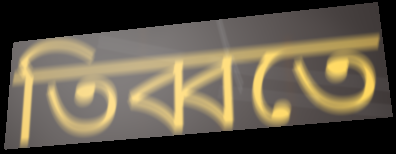
তিব্বতে